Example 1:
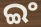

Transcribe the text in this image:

ଇଂ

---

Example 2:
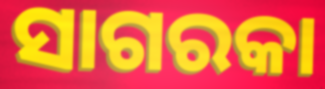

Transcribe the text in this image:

ସାଗରକା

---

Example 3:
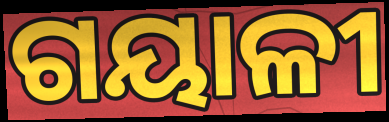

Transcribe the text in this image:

ଗୟାଳୀ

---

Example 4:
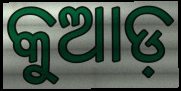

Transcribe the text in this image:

କୁଆଡ଼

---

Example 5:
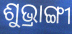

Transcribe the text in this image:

ଶୁଭ୍ରାଙ୍ଗୀ